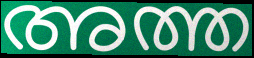
അത്ത